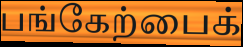
பங்கேற்பைக்